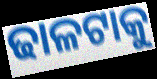
ଢାଳଟାକୁ